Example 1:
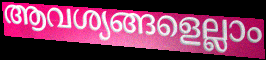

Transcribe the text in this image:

ആവശ്യങ്ങളെല്ലാം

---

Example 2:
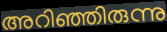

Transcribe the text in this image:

അറിഞ്ഞിരുന്നു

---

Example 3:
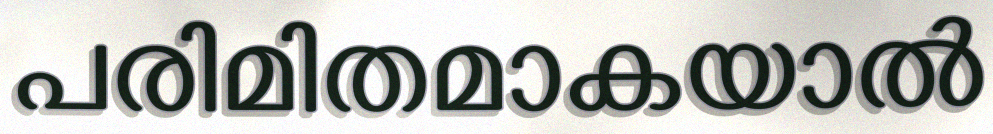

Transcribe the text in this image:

പരിമിതമാകയാൽ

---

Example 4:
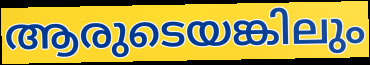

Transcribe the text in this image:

ആരുടെയങ്കിലും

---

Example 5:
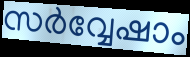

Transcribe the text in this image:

സർവ്വേഷാം